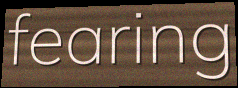
fearing